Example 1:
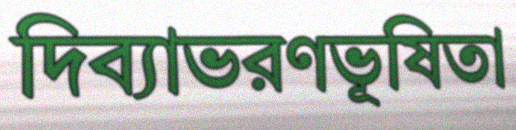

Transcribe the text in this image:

দিব্যাভরণভূষিতা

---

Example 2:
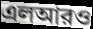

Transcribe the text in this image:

এলআরও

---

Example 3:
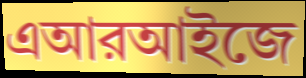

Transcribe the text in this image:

এআরআইজে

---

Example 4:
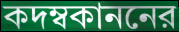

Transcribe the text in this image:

কদম্বকাননের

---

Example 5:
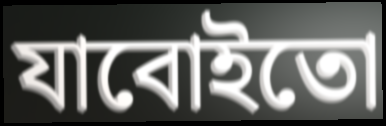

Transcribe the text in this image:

যাবোইতো